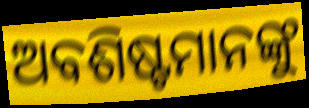
ଅବଶିଷ୍ଟମାନଙ୍କୁ